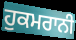
ਹੁਕਮਰਾਨੀ